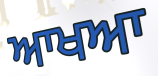
ਆਖਆ